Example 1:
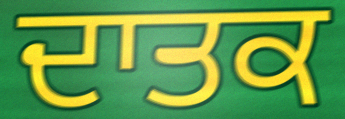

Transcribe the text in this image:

ਦਾਤਕ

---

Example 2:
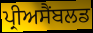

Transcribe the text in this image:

ਪ੍ਰੀਅਸੈਂਬਲਡ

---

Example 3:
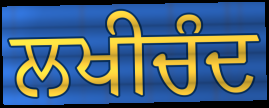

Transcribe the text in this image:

ਲਖੀਚੰਦ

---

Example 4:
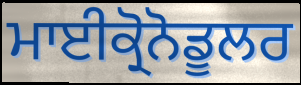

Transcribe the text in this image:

ਮਾਈਕ੍ਰੋਨੋਡੂਲਰ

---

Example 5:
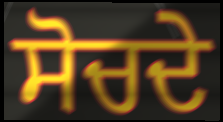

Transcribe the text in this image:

ਸੋਚਦੇ